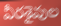
వీరశైవుల